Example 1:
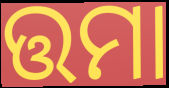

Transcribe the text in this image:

ତ୍ତମା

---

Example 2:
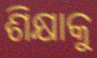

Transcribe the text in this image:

ଶିକ୍ଷାକୁ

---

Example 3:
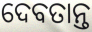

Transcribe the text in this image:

ଦେବତାନ୍ତ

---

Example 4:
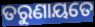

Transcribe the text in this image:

ତରୁଣାୟତେ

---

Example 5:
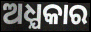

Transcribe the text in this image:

ଅଧ୍ଯକାର